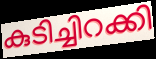
കുടിച്ചിറക്കി